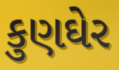
કુણઘેર